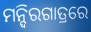
ମନ୍ଦିରଗାତ୍ରରେ